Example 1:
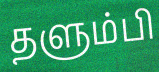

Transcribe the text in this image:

தளும்பி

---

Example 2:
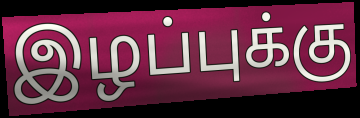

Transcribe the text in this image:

இழப்புக்கு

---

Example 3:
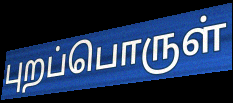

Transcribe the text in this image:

புறப்பொருள்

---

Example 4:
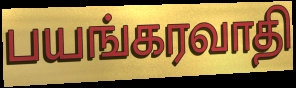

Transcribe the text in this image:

பயங்கரவாதி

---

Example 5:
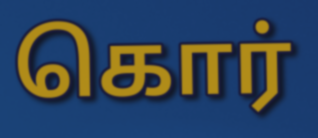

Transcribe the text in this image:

கொர்